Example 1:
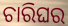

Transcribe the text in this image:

ଚାରିଘର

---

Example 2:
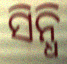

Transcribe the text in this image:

ସିନ୍ଧି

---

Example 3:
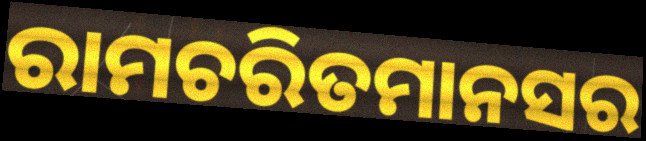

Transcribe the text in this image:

ରାମଚରିତମାନସର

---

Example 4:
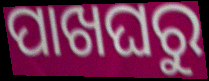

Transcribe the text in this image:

ପାଖଘରୁ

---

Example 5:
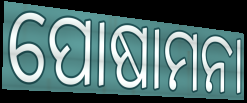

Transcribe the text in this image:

ପୋଷାମନା